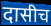
दासीच